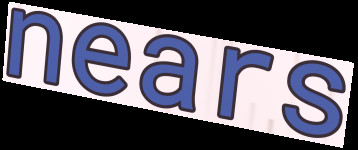
nears